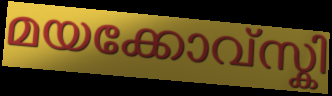
മയക്കോവ്സ്കി